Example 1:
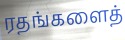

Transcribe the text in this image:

ரதங்களைத்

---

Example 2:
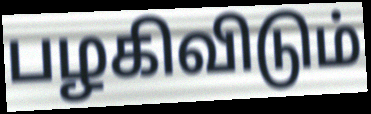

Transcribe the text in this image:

பழகிவிடும்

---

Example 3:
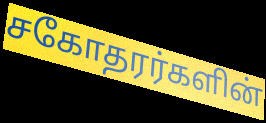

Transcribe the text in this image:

சகோதரர்களின்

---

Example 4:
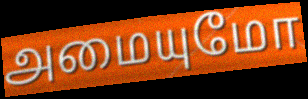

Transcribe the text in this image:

அமையுமோ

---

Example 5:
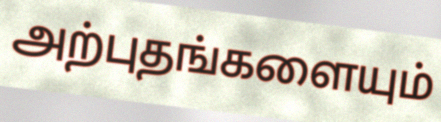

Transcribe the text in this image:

அற்புதங்களையும்